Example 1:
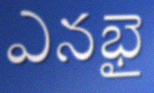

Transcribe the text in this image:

ఎనభై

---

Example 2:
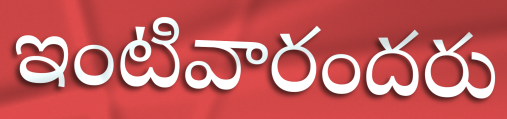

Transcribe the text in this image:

ఇంటివారందరు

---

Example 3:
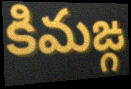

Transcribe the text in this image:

కిమఙ్గ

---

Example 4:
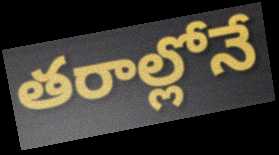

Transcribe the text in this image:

తరాల్లోనే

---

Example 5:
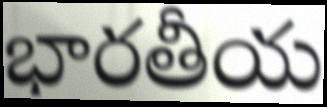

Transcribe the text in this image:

భారతీయ